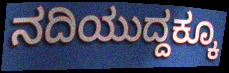
ನದಿಯುದ್ದಕ್ಕೂ